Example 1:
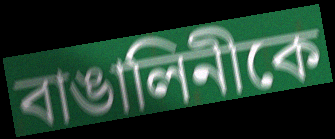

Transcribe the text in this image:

বাঙালিনীকে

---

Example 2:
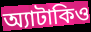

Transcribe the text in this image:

অ্যাটাকিও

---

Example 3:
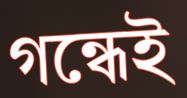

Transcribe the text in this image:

গন্ধেই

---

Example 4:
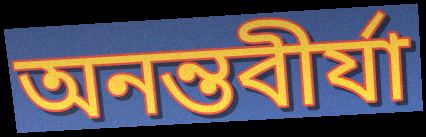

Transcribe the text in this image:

অনন্তবীর্যা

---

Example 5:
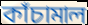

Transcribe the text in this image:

কাঁচামাল